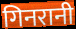
गिनरानी